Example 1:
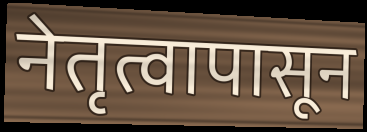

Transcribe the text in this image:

नेतृत्वापासून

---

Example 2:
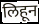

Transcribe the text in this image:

लिहून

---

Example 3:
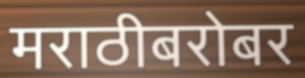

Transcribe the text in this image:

मराठीबरोबर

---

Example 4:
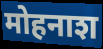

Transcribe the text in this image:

मोहनाश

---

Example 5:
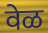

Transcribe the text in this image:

वेळ